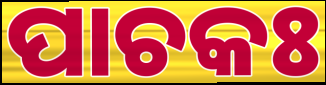
ପାଚକଃ